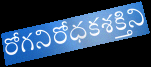
రోగనిరోధకశక్తిని